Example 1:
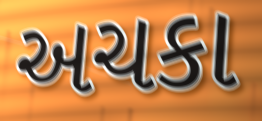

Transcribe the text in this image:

અચકા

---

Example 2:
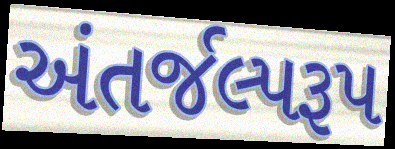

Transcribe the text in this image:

અંતર્જલ્પરૂપ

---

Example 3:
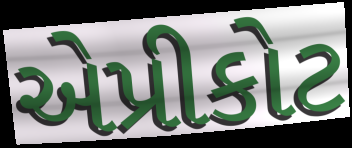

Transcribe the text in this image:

એપ્રીકોટ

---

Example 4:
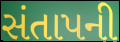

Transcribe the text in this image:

સંતાપની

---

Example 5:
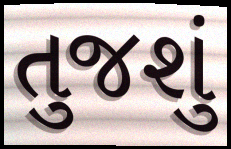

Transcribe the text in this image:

તુજશું